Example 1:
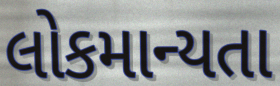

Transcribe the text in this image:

લોકમાન્યતા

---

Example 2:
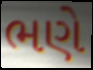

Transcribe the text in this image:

ભણે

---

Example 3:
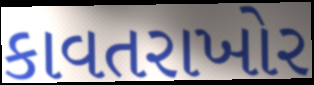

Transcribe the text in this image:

કાવતરાખોર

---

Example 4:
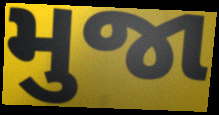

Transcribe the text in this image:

મુજા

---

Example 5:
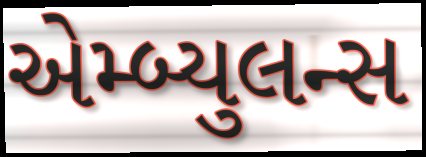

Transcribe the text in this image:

એમ્બ્યુલન્સ